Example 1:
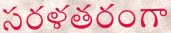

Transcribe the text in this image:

సరళతరంగా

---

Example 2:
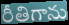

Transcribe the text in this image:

రీతిగాను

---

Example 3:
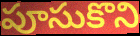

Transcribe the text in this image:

పూసుకొని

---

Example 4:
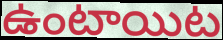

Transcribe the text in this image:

ఉంటాయిట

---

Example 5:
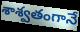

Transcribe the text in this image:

శాశ్వతంగానే